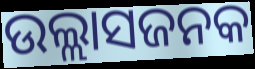
ଉଲ୍ଲାସଜନକ